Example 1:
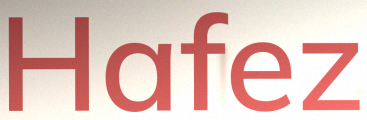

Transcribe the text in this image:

Hafez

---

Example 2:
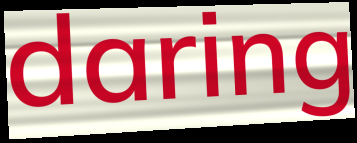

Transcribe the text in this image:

daring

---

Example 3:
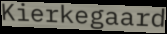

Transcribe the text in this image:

Kierkegaard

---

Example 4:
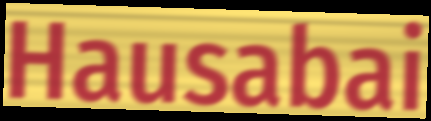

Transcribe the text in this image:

Hausabai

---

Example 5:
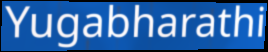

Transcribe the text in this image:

Yugabharathi